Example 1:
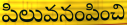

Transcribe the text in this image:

పిలువనంపించి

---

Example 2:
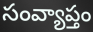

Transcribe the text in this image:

సంవ్యాప్తం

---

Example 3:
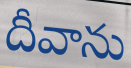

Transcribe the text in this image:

దీవాను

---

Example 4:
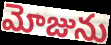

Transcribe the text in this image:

మోజును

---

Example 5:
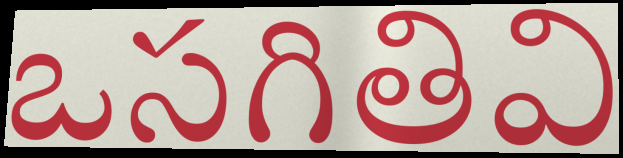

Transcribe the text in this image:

ఒసగితివి